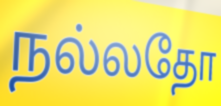
நல்லதோ